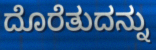
ದೊರೆತುದನ್ನು